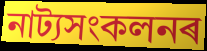
নাট্যসংকলনৰ